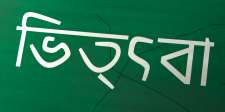
ভিত্ৎবা